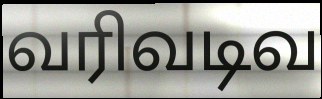
வரிவடிவ